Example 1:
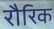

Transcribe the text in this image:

रौरिक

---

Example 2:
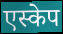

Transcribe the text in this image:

एस्केप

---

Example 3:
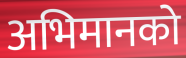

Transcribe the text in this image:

अभिमानको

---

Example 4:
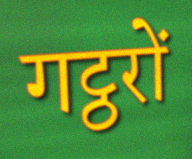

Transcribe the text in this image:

गट्ठरों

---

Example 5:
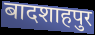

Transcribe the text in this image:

बादशाहपुर